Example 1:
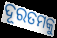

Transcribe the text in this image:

ଦୂରତମକୁ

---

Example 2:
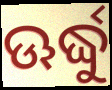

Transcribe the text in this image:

ଊର୍ଦ୍ଧୁ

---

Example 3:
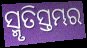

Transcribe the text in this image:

ସ୍ମୃତିସ୍ତମ୍ଭର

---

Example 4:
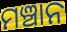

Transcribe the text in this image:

ମଞ୍ଚାନ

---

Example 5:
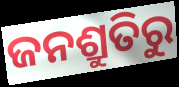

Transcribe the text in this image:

ଜନଶ୍ରୁତିରୁ